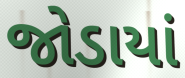
જોડાયાં